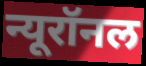
न्यूरॉनल